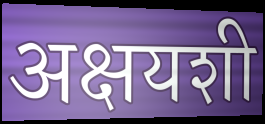
अक्षयशी